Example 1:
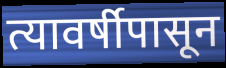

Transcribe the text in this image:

त्यावर्षीपासून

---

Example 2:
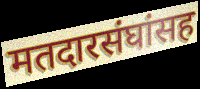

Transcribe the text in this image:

मतदारसंघांसह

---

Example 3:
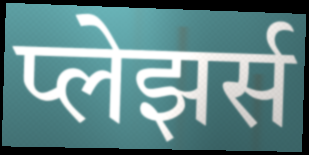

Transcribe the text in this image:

प्लेझर्स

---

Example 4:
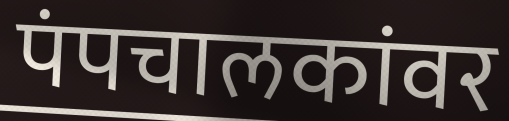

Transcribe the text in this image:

पंपचालकांवर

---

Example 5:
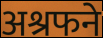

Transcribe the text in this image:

अश्रफने